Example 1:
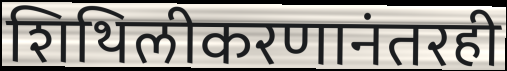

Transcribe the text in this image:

शिथिलीकरणानंतरही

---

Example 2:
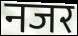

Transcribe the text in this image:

नजर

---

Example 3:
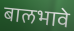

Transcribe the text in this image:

बालभावे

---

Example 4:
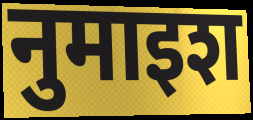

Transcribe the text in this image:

नुमाइश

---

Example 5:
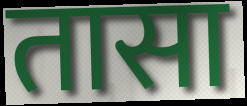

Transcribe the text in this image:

तासा